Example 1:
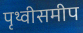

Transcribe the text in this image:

पृथ्वीसमीप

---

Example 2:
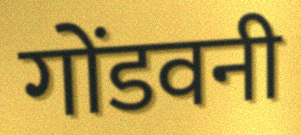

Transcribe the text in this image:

गोंडवनी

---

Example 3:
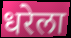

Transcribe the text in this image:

धरेला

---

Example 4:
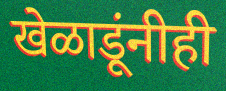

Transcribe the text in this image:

खेळाडूंनीही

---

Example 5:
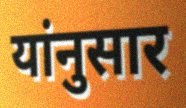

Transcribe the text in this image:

यांनुसार